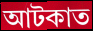
আটকাত